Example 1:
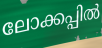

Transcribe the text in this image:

ലോക്കപ്പിൽ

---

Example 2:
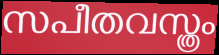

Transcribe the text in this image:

സപീതവസ്ത്രം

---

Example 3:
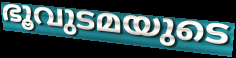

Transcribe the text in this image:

ഭൂവുടമയുടെ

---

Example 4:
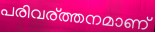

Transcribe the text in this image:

പരിവര്ത്തനമാണ്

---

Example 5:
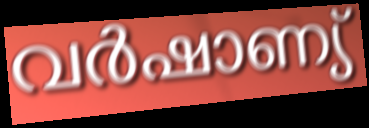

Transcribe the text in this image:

വർഷാണ്യ്